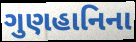
ગુણહાનિના